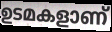
ഉടമകളാണ്